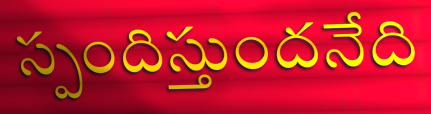
స్పందిస్తుందనేది